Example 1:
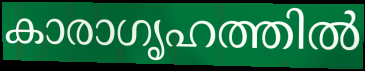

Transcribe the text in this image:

കാരാഗൃഹത്തിൽ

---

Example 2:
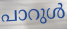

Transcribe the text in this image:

പാറുൾ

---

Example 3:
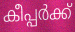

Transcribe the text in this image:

കീപ്പർക്ക്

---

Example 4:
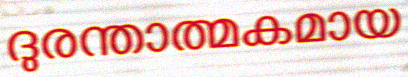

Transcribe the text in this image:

ദുരന്താത്മകമായ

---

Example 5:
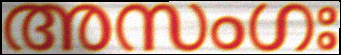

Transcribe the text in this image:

അസംഗഃ